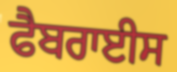
ਫੈਬਰਾਈਸ